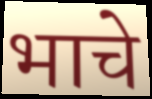
भाचे